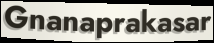
Gnanaprakasar